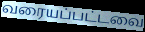
வரையப்பட்டவை